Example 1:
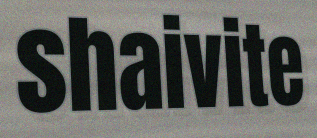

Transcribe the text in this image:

shaivite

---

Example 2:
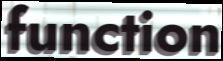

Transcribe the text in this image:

function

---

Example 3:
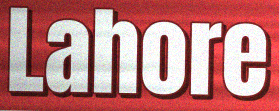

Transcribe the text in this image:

Lahore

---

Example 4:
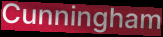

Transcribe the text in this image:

Cunningham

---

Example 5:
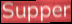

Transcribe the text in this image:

Supper